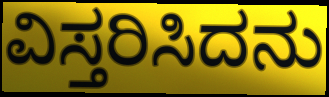
ವಿಸ್ತರಿಸಿದನು